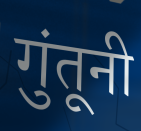
गुंतूनी